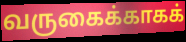
வருகைக்காகக்